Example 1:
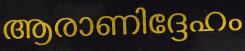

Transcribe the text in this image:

ആരാണിദ്ദേഹം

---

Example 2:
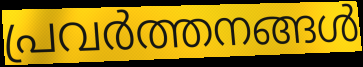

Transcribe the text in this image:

പ്രവർത്തനങ്ങൾ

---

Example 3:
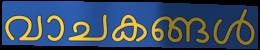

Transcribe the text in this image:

വാചകങ്ങൾ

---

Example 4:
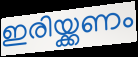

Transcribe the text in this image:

ഇരിയ്ക്കണം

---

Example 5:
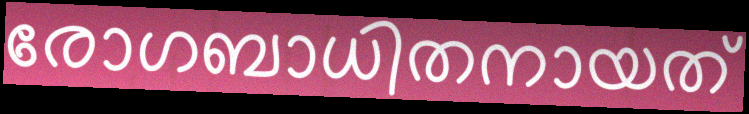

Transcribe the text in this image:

രോഗബാധിതനായത്